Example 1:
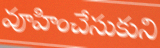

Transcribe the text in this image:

వూహించేసుకుని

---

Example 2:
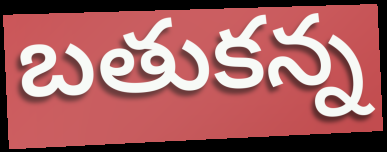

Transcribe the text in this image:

బతుకన్న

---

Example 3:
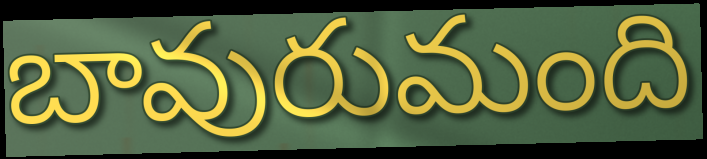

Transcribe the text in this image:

బావురుమంది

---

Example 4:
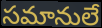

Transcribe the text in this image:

సమానులే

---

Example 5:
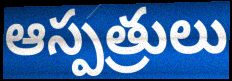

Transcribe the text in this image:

ఆస్పత్రులు